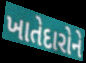
ખાતેદારોને